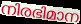
നിരഭിമാന